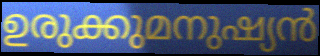
ഉരുക്കുമനുഷ്യൻ